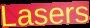
Lasers